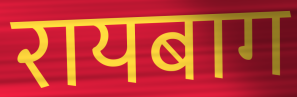
रायबाग